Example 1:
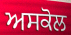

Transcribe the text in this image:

ਅਸਕੋਲ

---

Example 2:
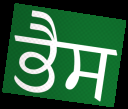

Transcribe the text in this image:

ਭੈਸ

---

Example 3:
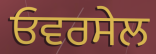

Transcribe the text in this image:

ਓਵਰਸੇਲ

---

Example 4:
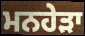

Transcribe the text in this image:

ਮਨਹੇੜਾ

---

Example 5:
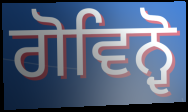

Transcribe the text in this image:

ਗੋਵਿਨ੍ਦੋ